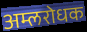
अम्लरोधक